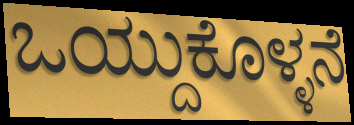
ಒಯ್ದುಕೊಳ್ಳನೆ